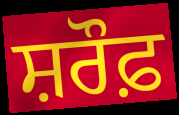
ਸ਼ਰੌਫ਼